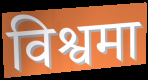
विश्वमा